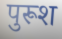
पुरूश